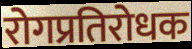
रोगप्रतिरोधक